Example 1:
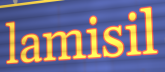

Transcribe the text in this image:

lamisil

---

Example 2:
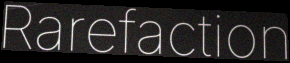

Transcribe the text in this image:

Rarefaction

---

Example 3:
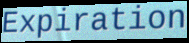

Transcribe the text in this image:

Expiration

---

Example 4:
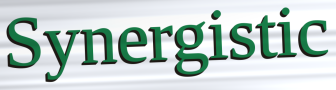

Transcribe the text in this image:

Synergistic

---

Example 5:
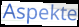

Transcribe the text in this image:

Aspekte